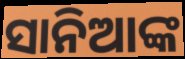
ସାନିଆଙ୍କ